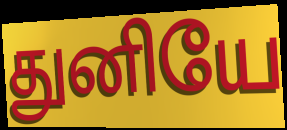
துனியே